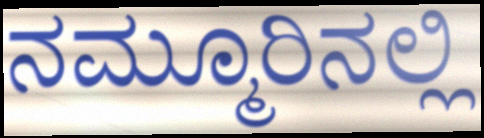
ನಮ್ಮೂರಿನಲ್ಲಿ